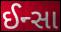
ઈન્સા